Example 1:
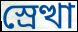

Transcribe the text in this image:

স্রেত্থা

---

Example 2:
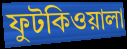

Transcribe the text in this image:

ফুটকিওয়ালা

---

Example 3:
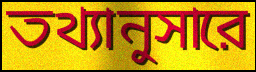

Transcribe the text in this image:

তথ্যানুসারে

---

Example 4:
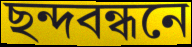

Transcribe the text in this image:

ছন্দবন্ধনে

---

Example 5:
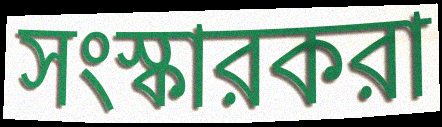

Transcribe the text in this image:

সংস্কারকরা